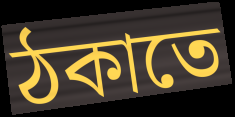
ঠকাতে